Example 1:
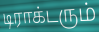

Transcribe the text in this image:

டிராக்டரும்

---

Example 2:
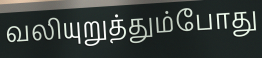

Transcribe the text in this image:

வலியுறுத்தும்போது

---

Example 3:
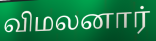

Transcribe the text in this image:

விமலனார்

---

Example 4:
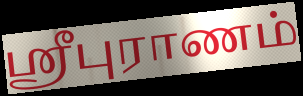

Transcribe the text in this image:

ஸ்ரீபுராணம்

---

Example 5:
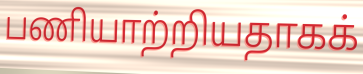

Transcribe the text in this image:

பணியாற்றியதாகக்